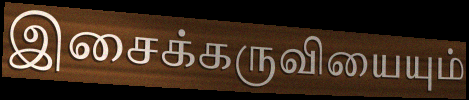
இசைக்கருவியையும்